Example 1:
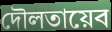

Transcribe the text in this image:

দৌলতায়েব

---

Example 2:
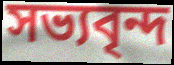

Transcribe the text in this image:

সভ্যবৃন্দ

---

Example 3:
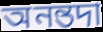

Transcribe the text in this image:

অনন্তদা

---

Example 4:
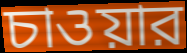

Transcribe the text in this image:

চাওয়ার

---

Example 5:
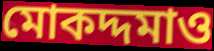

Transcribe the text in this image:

মোকদ্দমাও